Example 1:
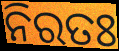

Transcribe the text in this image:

ନିରତଃ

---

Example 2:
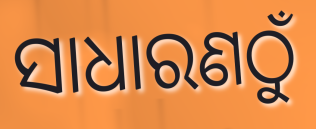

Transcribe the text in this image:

ସାଧାରଣଠୁଁ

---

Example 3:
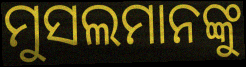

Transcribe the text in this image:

ମୁସଲମାନଙ୍କୁ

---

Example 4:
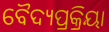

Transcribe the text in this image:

ବୈଦ୍ୟପ୍ରକ୍ରିୟା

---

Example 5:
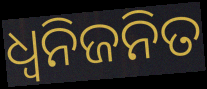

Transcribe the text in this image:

ଧ୍ଵନିଜନିତ